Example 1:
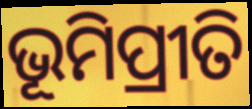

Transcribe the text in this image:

ଭୂମିପ୍ରୀତି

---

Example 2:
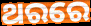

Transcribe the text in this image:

ଥରରେ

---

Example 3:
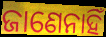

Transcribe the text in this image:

ଜାଣେନାହିଁ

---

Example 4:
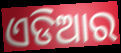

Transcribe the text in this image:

ଏଡିଆର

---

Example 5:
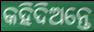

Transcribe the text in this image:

କହିଦିଅନ୍ତେ